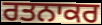
ਰਤਨਾਕਰ